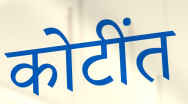
कोटींत